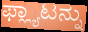
ಫ್ಲ್ಯಾಟನ್ನು